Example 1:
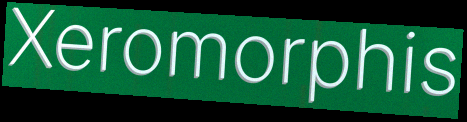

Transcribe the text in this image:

Xeromorphis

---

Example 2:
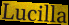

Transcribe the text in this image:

Lucilla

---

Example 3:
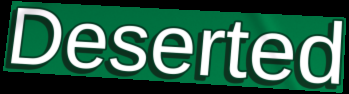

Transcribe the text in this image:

Deserted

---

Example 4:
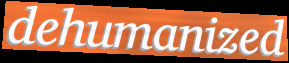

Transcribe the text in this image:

dehumanized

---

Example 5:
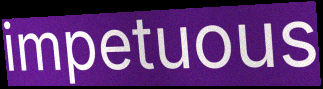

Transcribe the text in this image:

impetuous